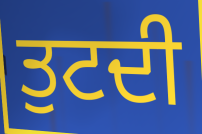
ਤੁਟਦੀ